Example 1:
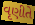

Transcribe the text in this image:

વૃણીતે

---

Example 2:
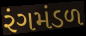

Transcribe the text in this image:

રંગમંડળ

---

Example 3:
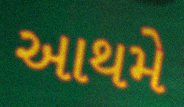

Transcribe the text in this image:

આથમે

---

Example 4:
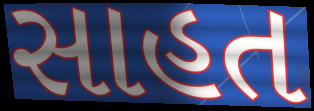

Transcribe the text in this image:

સાહત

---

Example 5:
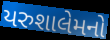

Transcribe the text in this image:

યરુશાલેમનો